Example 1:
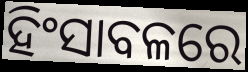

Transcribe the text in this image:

ହିଂସାବଳରେ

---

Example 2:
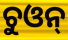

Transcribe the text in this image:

ଚୁଓନ୍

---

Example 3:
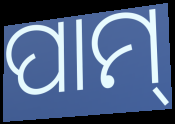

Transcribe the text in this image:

ପାମ୍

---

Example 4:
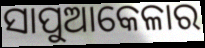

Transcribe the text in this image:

ସାପୁଆକେଳାର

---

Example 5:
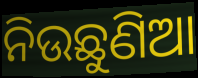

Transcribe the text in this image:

ନିଉଛୁଣିଆ